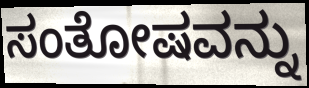
ಸಂತೋಷವನ್ನು